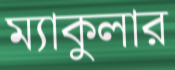
ম্যাকুলার